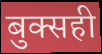
बुक्सही